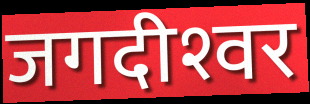
जगदीश्वर